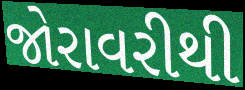
જોરાવરીથી